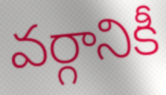
వర్గానికీ